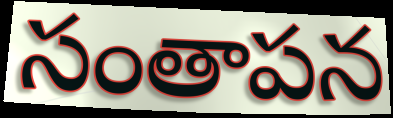
సంతాపన